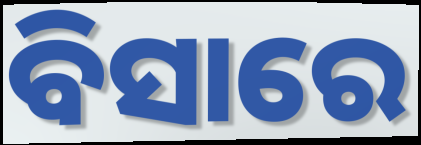
ବିସାରେ